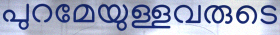
പുറമേയുള്ളവരുടെ